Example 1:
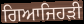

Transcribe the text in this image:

ਗਿਆਜਿਹੜੀ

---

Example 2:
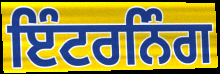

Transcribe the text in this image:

ਇੰਟਰਨਿੰਗ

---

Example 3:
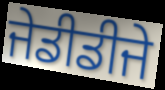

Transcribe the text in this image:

ਜੇਡੀਡੀਜੇ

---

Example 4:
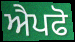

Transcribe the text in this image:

ਐਪਫੋ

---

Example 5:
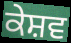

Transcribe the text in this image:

ਕੇਸ਼ਵ